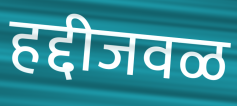
हद्दीजवळ